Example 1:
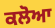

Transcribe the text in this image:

ਕਲੋਆ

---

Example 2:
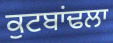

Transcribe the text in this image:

ਕੁਟਬਾਂਢਲਾ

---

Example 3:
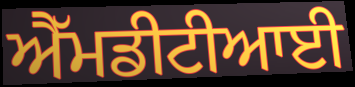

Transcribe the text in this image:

ਐੱਮਡੀਟੀਆਈ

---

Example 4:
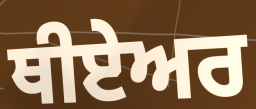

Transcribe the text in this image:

ਥੀਏਅਰ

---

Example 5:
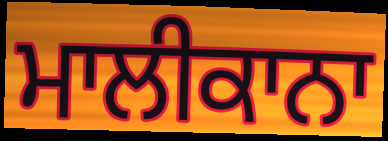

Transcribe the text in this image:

ਮਾਲੀਕਾਨਾ